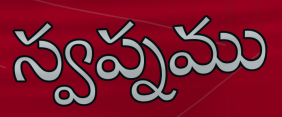
స్వప్నము